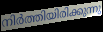
നിർത്തിയിരിക്കുന്നു